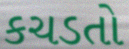
કચડતો